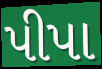
પીપા